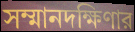
সম্মানদক্ষিণার